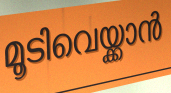
മൂടിവെയ്ക്കാൻ